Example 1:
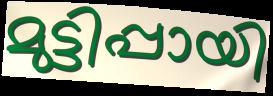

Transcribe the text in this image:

മുട്ടിപ്പായി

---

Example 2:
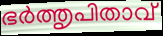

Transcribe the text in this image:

ഭർത്തൃപിതാവ്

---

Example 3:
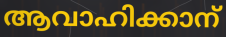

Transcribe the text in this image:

ആവാഹിക്കാന്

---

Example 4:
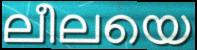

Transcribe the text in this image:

ലീലയെ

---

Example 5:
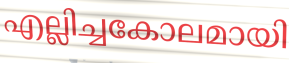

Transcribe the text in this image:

എല്ലിച്ചകോലമായി